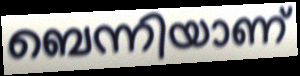
ബെന്നിയാണ്